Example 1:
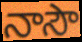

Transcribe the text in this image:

నాసౌ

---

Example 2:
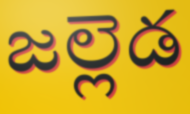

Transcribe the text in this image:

జల్లెడ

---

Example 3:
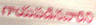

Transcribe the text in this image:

గాయపడినవారిని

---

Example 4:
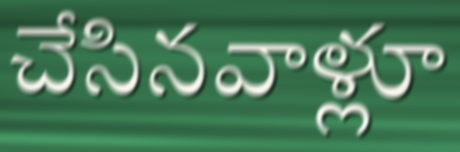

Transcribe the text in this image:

చేసినవాళ్లూ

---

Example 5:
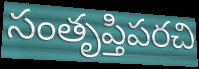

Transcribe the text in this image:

సంతృప్తిపరచి